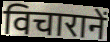
विचारानें